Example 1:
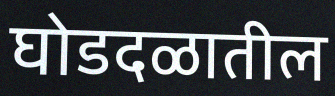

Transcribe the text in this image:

घोडदळातील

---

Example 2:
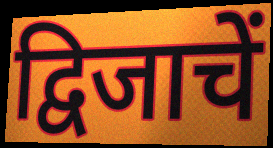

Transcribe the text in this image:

द्विजाचें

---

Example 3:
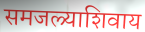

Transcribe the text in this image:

समजल्याशिवाय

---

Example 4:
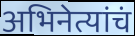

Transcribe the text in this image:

अभिनेत्यांचं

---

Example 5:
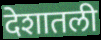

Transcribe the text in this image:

देशातली